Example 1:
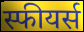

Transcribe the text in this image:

स्फीयर्स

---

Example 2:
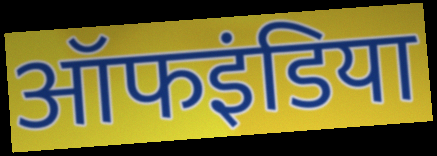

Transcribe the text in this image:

ऑफइंडिया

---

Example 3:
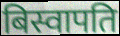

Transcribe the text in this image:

बिस्वापति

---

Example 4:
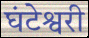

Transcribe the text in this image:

घंटेश्वरी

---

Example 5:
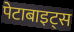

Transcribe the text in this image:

पेटाबाइट्स